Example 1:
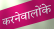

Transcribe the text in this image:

करनेवालोंके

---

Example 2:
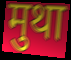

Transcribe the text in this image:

मुथा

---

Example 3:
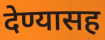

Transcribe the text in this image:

देण्यासह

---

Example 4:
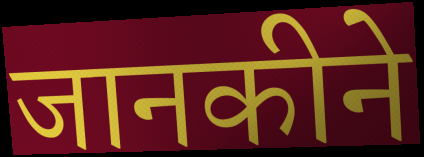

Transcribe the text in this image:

जानकीने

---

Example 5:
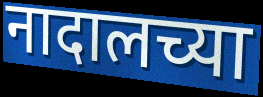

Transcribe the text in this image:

नादालच्या